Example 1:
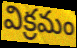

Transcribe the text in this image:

విక్రమం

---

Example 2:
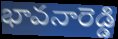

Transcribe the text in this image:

భావనారెడ్డి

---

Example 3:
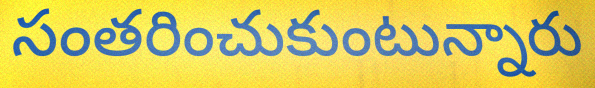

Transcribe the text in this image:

సంతరించుకుంటున్నారు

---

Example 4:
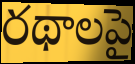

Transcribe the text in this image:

రథాలపై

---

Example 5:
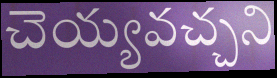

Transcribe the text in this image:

చెయ్యవచ్చని